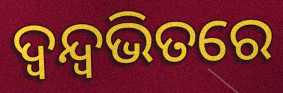
ଦ୍ୱନ୍ଦ୍ୱଭିତରେ